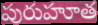
పురుహూత